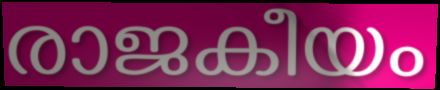
രാജകീയം